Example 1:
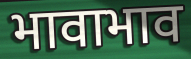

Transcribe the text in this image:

भावाभाव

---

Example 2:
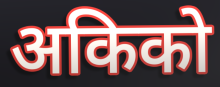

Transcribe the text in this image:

अकिको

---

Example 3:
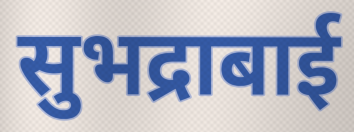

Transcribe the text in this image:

सुभद्राबाई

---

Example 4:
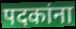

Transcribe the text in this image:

पदकांना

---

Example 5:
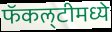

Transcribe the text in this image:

फॅकल्टीमध्ये